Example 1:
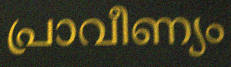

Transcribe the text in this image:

പ്രാവീണ്യം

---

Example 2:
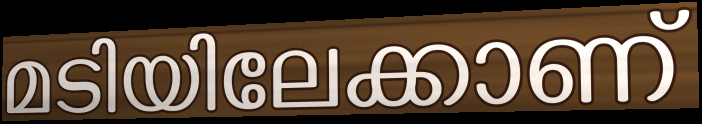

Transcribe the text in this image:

മടിയിലേക്കാണ്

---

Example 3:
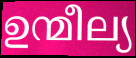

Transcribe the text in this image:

ഉന്മീല്യ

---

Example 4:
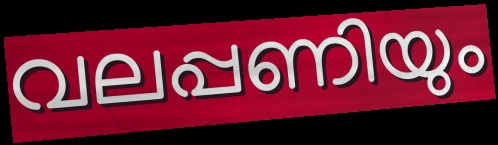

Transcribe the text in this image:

വലപ്പണിയും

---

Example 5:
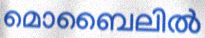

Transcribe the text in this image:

മൊബൈലിൽ